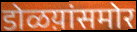
डोळय़ांसमोर